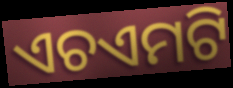
ଏଚଏମଟି